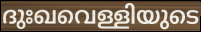
ദുഃഖവെള്ളിയുടെ